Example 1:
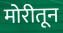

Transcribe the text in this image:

मोरीतून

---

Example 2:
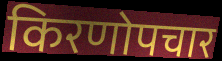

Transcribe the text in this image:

किरणोपचार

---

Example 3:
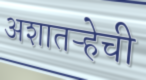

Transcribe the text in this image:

अशातऱ्हेची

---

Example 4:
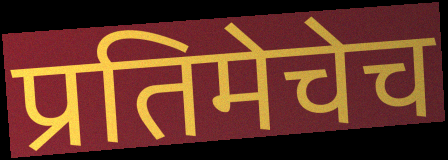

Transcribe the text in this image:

प्रतिमेचेच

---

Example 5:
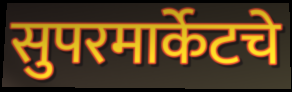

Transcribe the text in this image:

सुपरमार्केटचे